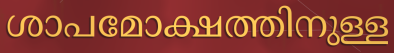
ശാപമോക്ഷത്തിനുള്ള